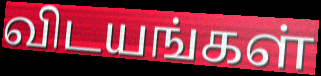
விடயங்கள்